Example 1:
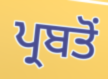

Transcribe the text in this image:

ਪ੍ਰਬਤੋਂ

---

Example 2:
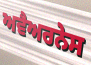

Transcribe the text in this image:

ਅਵੈਅਰਨੇਸ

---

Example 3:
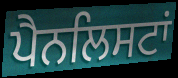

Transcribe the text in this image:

ਪੈਨਲਿਸਟਾਂ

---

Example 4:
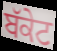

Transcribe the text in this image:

ਬੱਕੇਟ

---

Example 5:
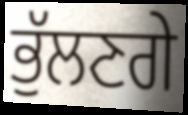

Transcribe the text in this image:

ਭੁੱਲਣਗੇ